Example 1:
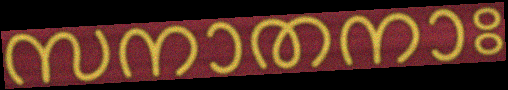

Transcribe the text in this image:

സനാതനാഃ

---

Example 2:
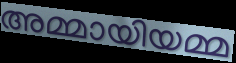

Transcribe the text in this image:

അമ്മായിയമ്മ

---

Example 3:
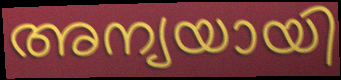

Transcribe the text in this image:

അന്യയായി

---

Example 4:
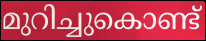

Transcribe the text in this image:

മുറിച്ചുകൊണ്ട്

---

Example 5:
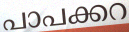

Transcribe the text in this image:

പാപക്കറ